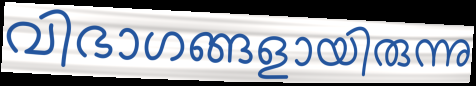
വിഭാഗങ്ങളായിരുന്നു